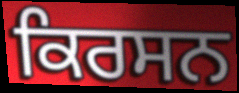
ਕਿਰਸਨ